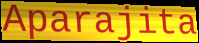
Aparajita